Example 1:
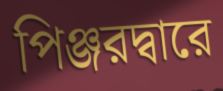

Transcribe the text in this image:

পিঞ্জরদ্বারে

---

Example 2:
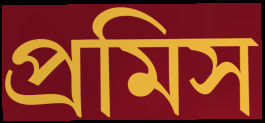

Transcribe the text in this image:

প্রমিস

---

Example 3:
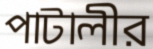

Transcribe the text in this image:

পাটালীর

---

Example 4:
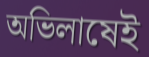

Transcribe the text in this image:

অভিলাষেই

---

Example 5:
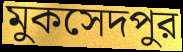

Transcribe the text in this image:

মুকসেদপুর